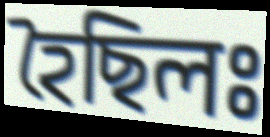
হৈছিলঃ